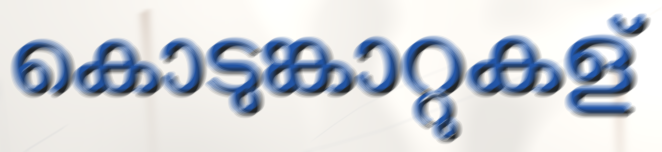
കൊടുങ്കാറ്റുകള്